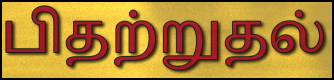
பிதற்றுதல்